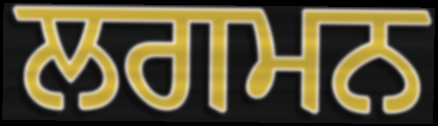
ਲਗਮਨ